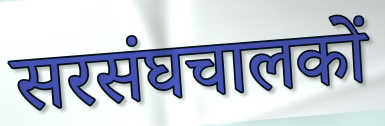
सरसंघचालकों